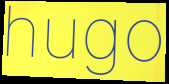
hugo